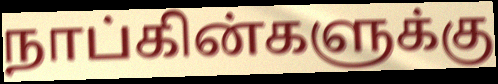
நாப்கின்களுக்கு